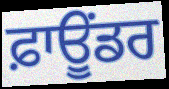
ਫ਼ਾਊਂਡਰ